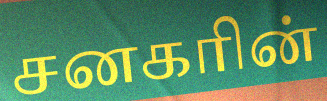
சனகரின்